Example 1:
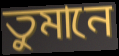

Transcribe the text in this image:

তুমানে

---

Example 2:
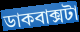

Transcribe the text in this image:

ডাকবাক্সটা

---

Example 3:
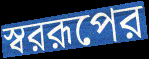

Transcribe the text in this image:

স্বররূপের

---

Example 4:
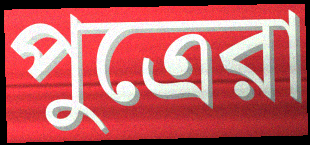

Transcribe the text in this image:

পুত্রেরা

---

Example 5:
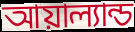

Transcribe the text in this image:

আয়াল্যান্ড